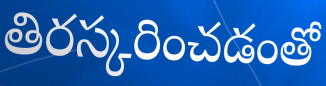
తిరస్కరించడంతో